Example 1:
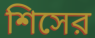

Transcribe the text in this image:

শিসের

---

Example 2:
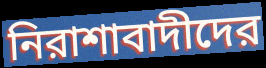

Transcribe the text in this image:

নিরাশাবাদীদের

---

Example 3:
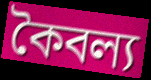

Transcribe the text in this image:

কৈবল্য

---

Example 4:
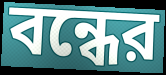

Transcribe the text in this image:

বন্ধের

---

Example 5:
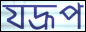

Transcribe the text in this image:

যদ্রূপ